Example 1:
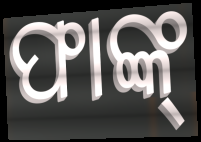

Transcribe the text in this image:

ଫାଙ୍କ୍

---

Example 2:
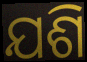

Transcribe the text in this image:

ଯଶି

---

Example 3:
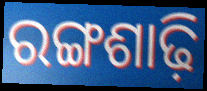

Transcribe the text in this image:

ରଙ୍ଗଶାଢ଼ି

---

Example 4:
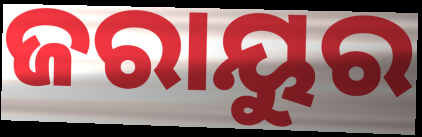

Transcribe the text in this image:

ଜରାୟୁର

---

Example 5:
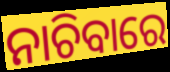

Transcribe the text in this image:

ନାଚିବାରେ